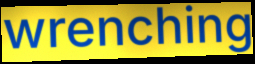
wrenching